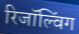
रिजॉल्विंग